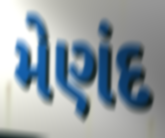
મેણંદ